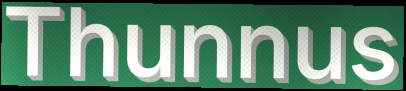
Thunnus